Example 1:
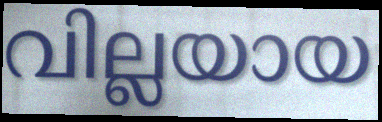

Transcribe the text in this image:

വില്ലയായ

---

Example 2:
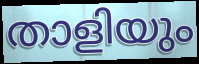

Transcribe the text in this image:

താളിയും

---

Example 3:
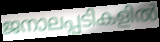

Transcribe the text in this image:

ജനാലപ്പടികളിൽ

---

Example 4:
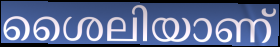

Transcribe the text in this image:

ശൈലിയാണ്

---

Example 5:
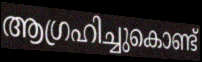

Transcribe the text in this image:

ആഗ്രഹിച്ചുകൊണ്ട്